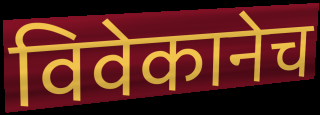
विवेकानेच